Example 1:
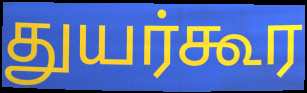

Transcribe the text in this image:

துயர்கூர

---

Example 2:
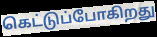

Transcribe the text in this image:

கெட்டுப்போகிறது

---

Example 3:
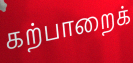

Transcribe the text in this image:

கற்பாறைக்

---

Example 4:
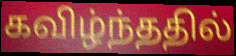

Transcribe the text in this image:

கவிழ்ந்ததில்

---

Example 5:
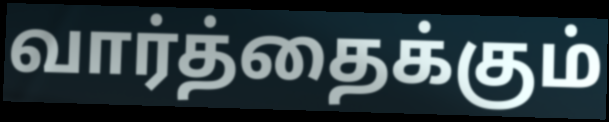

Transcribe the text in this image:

வார்த்தைக்கும்